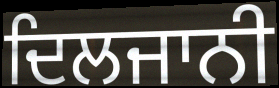
ਦਿਲਜਾਨੀ